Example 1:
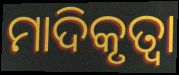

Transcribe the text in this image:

ମାଦିକୃତ୍ୱା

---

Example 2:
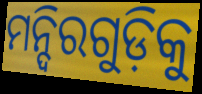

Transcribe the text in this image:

ମନ୍ଦିରଗୁଡ଼ିକୁ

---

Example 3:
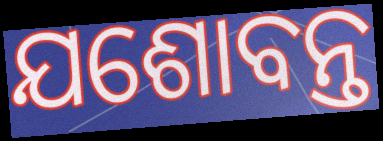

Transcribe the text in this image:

ଯଶୋବନ୍ତ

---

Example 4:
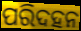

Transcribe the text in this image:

ପରିଦହନ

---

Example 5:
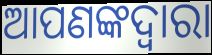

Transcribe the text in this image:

ଆପଣଙ୍କଦ୍ବାରା